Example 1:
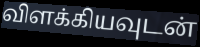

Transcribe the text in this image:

விளக்கியவுடன்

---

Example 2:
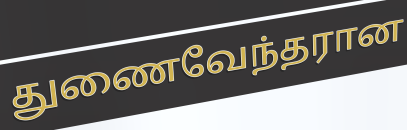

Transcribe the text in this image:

துணைவேந்தரான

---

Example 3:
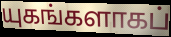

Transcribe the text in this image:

யுகங்களாகப்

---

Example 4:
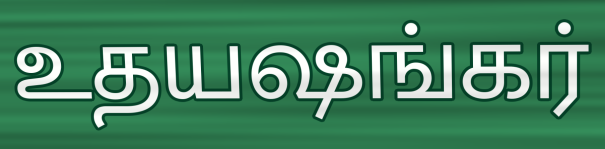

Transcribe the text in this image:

உதயஷங்கர்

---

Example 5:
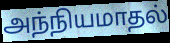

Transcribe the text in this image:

அந்நியமாதல்